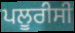
ਪਲੂਰੀਸੀ